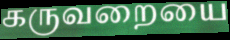
கருவறையை